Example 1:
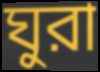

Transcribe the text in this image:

ঘুরা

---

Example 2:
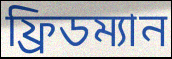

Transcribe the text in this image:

ফ্রিডম্যান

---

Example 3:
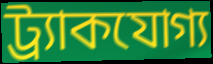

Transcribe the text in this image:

ট্র্যাকযোগ্য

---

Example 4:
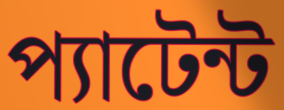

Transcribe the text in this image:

প্যাটেন্ট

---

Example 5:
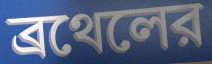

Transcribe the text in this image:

ব্রথেলের